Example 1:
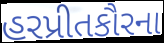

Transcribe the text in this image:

હરપ્રીતકૌરના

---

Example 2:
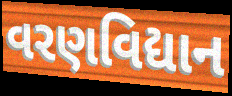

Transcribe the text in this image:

વરણવિદ્યાન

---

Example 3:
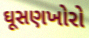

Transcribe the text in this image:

ઘૂસણખોરો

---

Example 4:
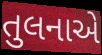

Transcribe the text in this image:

તુલનાએ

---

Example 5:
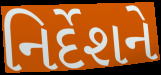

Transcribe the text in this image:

નિર્દેશને